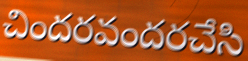
చిందరవందరచేసి